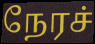
நேரச்